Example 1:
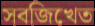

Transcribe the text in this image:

সবজিখেত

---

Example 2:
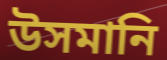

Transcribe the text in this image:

উসমানি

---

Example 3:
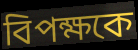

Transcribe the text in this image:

বিপক্ষকে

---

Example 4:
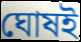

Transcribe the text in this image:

ঘোষই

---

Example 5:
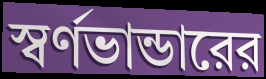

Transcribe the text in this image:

স্বর্ণভান্ডারের